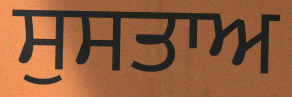
ਸੁਸਤਾਅ